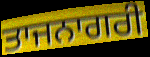
ਤਾਜਨਾਗਰੀ